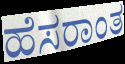
ಹೆಸರಾಂತ